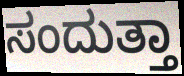
ಸಂದುತ್ತಾ